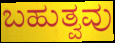
ಬಹುತ್ವವು